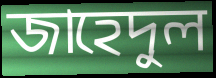
জাহেদুল